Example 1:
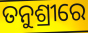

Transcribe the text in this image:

ତନୁଶ୍ରୀରେ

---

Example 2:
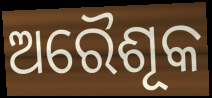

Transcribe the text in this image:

ଅରୈଶୂକ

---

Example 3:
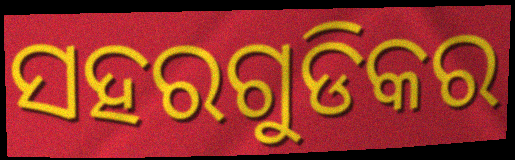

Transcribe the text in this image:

ସହରଗୁଡିକର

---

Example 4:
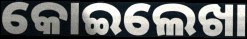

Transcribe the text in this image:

କୋଇଲେଖା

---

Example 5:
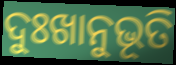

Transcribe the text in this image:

ଦୁଃଖାନୁଭୂତି